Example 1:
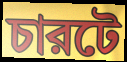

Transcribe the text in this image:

চারটে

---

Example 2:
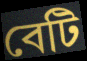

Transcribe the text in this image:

বেটি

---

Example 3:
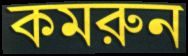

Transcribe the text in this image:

কমরুন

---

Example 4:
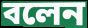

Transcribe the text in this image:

বলেন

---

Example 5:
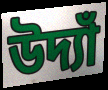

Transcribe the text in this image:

উদ্যাঁ